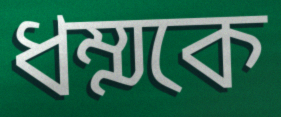
ধম্মকে